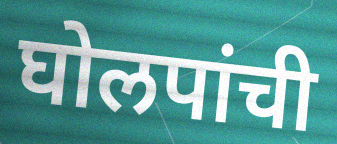
घोलपांची